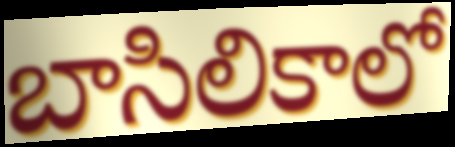
బాసిలికాలో